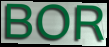
BOR